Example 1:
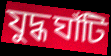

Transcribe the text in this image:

যুদ্ধঘাঁটি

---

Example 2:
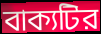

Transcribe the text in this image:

বাক্যটির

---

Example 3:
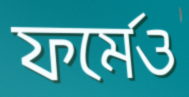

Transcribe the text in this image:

ফর্মেও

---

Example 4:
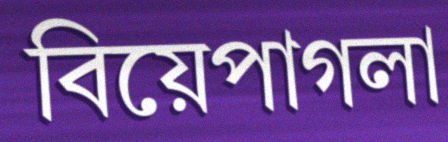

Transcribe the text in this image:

বিয়েপাগলা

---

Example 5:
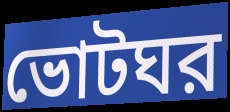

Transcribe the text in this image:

ভোটঘর